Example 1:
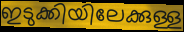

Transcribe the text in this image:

ഇടുക്കിയിലേക്കുള്ള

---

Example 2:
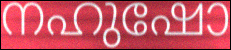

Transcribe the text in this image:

നഹുഷോ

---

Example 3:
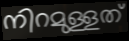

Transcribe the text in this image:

നിറമുള്ളത്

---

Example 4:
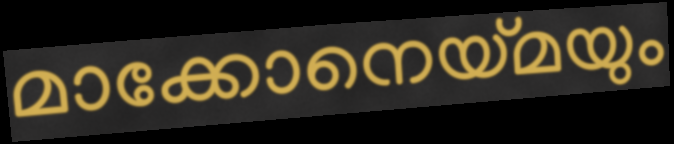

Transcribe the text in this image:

മാക്കോനെയ്മയും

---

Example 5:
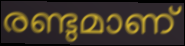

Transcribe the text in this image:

രണ്ടുമാണ്